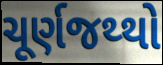
ચૂર્ણજથ્થો